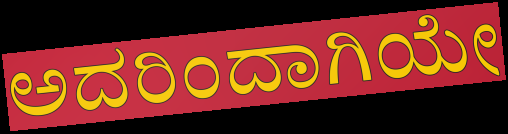
ಅದರಿಂದಾಗಿಯೇ